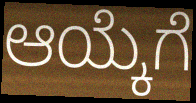
ಆಯ್ಕೆಗೆ